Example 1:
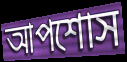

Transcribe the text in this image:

আপশোস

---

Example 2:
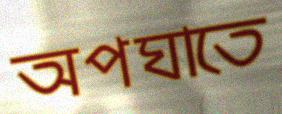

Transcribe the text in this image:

অপঘাতে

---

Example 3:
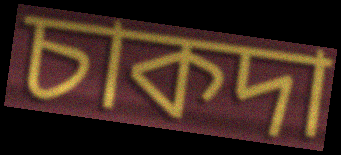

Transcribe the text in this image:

চাকদা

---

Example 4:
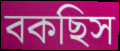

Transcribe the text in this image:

বকছিস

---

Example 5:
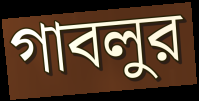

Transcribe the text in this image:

গাবলুর